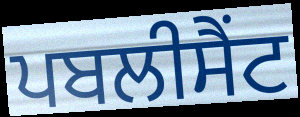
ਪਬਲੀਸੈਂਟ